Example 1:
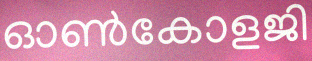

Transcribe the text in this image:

ഓൺകോളജി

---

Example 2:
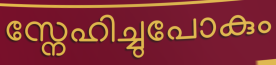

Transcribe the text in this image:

സ്നേഹിച്ചുപോകും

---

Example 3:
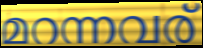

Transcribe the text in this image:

മറന്നവര്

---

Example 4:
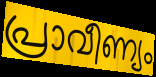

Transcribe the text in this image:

പ്രാവീണ്യം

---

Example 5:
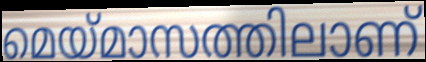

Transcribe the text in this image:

മെയ്മാസത്തിലാണ്